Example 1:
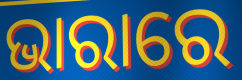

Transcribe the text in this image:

ଭାରାରେ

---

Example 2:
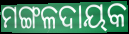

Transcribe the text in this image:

ମଙ୍ଗଳଦାୟକ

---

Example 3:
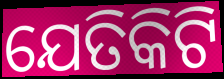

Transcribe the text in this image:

ଯେତିକିଟି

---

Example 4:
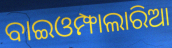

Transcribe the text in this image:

ବାଇଓମ୍ଫାଲାରିଆ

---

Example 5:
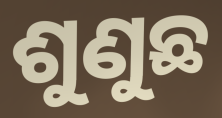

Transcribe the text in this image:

ଶୁଣୁଛ